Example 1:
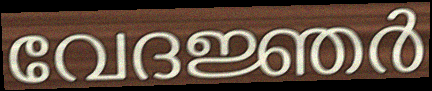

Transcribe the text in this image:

വേദജ്ഞർ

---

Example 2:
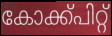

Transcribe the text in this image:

കോക്ക്പിറ്റ്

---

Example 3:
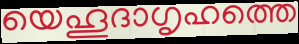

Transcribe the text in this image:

യെഹൂദാഗൃഹത്തെ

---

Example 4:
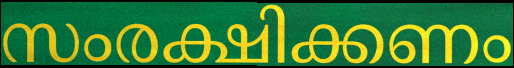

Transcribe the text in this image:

സംരക്ഷിക്കണം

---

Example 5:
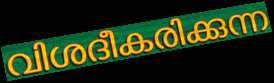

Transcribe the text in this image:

വിശദീകരിക്കുന്ന